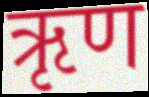
ऋृण